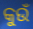
କୁଉଁ